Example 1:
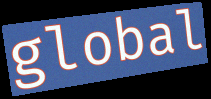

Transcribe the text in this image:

global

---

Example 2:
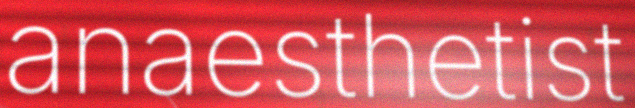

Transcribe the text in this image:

anaesthetist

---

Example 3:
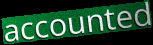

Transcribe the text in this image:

accounted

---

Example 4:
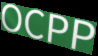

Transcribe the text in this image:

OCPP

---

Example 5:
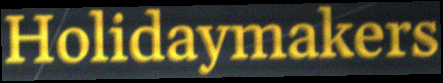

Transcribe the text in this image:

Holidaymakers